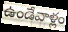
ఉండేవాళ్లం